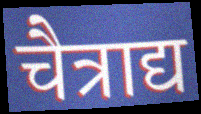
चैत्राद्य